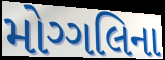
મોગ્ગલિના